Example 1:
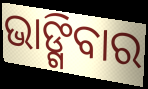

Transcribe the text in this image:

ଭାଙ୍ଗିବାର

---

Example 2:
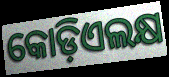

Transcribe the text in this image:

କୋଡ଼ିଏଲକ୍ଷ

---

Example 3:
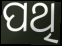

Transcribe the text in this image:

ପଥି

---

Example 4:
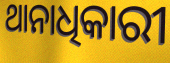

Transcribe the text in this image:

ଥାନାଧିକାରୀ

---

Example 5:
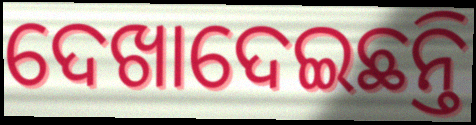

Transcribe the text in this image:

ଦେଖାଦେଇଛନ୍ତି